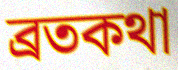
ব্রতকথা